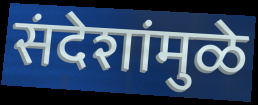
संदेशांमुळे